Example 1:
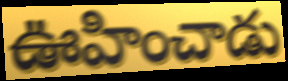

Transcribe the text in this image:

ఊహించాడు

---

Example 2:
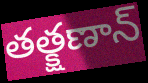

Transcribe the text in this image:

తత్క్షణాన్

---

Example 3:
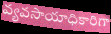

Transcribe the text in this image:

వ్యవసాయాధికారిగా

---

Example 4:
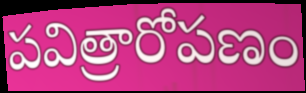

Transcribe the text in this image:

పవిత్రారోపణం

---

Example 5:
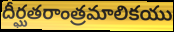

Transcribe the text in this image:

దీర్ఘతరాంత్రమాలికయు